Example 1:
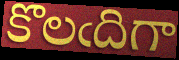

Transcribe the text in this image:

కొలఁదిగా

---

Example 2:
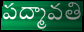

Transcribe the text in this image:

పద్మావతి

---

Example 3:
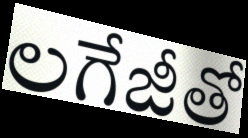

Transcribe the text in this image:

లగేజీతో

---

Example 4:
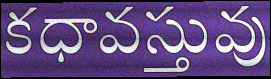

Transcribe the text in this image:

కధావస్తువు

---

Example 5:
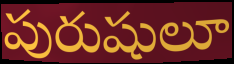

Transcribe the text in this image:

పురుషులూ